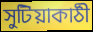
সুটিয়াকাঠী